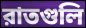
রাতগুলি